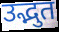
उद्भुत